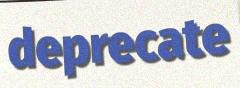
deprecate